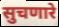
सुचणारे